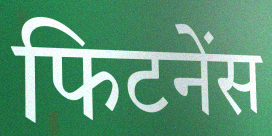
फिटनेंस